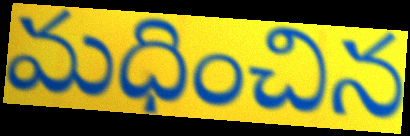
మధించిన